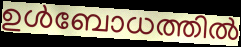
ഉൾബോധത്തിൽ